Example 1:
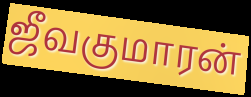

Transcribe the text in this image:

ஜீவகுமாரன்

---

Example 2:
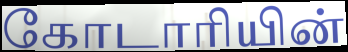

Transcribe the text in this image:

கோடாரியின்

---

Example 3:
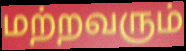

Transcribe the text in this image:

மற்றவரும்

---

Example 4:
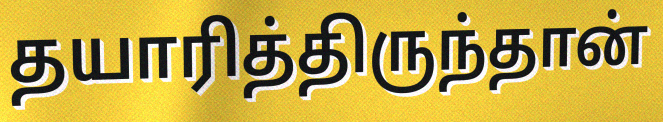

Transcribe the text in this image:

தயாரித்திருந்தான்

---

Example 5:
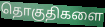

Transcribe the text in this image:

தொகுதிகளை